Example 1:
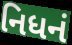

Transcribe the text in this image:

નિધનં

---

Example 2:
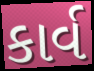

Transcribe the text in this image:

કાર્વ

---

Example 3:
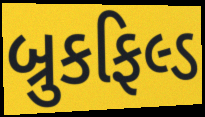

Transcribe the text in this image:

બ્રુકફિલ્ડ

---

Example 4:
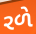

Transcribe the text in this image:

રળે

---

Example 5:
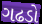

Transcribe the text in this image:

ગઢડો